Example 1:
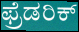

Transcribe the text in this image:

ಫ್ರೆಡರಿಕ್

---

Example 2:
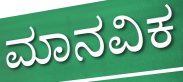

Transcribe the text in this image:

ಮಾನವಿಕ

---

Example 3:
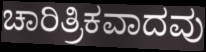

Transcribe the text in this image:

ಚಾರಿತ್ರಿಕವಾದವು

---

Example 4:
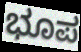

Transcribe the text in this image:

ಭೂಪ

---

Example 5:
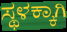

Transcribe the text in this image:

ಸ್ಥಳಕ್ಕಾಗಿ